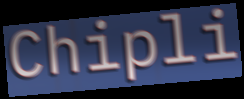
Chipli